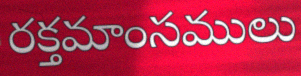
రక్తమాంసములు